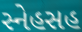
સ્નેહસહ